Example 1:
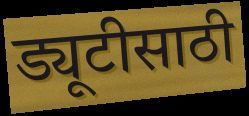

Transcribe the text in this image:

ड्यूटीसाठी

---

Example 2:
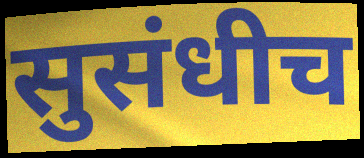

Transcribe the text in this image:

सुसंधीच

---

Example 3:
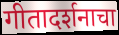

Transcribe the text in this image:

गीतादर्शनाचा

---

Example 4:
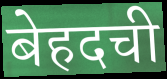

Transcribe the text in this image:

बेहदची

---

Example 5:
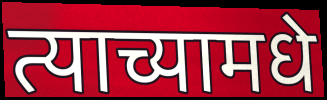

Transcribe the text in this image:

त्याच्यामधे